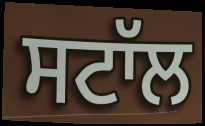
ਸਟਾੱਲ